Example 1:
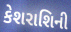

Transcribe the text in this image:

કેશરાશિની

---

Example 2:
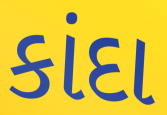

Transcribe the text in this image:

કાંદા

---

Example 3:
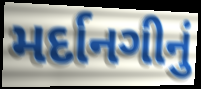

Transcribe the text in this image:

મર્દાનગીનું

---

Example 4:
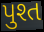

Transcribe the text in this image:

પુશ્ત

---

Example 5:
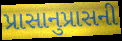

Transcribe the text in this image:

પ્રાસાનુપ્રાસની